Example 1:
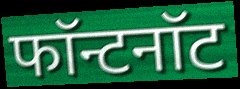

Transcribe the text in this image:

फॉन्टनॉट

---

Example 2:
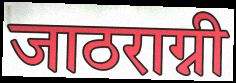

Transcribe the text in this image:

जाठराग्नी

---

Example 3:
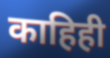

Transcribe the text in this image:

काहिही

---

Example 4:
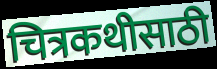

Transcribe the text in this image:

चित्रकथीसाठी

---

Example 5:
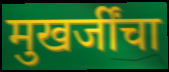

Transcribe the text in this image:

मुखर्जींचा